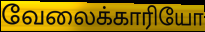
வேலைக்காரியோ